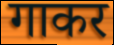
गाकर